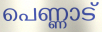
പെണ്ണാട്